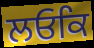
ਲਓਕਿ